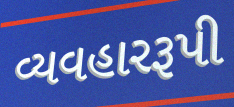
વ્યવહારરૂપી